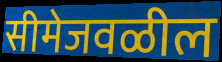
सीमेजवळील